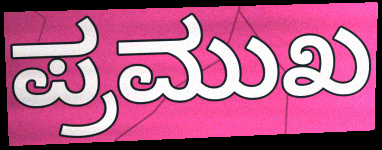
ಪ್ರಮುಖ